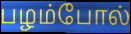
பழம்போல்